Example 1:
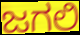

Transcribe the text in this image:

ಜಗಲಿ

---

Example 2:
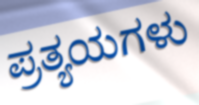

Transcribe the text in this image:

ಪ್ರತ್ಯಯಗಳು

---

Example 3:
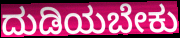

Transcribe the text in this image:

ದುಡಿಯಬೇಕು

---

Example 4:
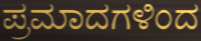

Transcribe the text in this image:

ಪ್ರಮಾದಗಳಿಂದ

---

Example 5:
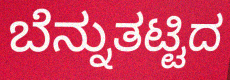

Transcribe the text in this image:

ಬೆನ್ನುತಟ್ಟಿದ